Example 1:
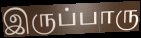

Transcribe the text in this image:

இருப்பாரு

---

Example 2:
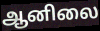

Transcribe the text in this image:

ஆனிலை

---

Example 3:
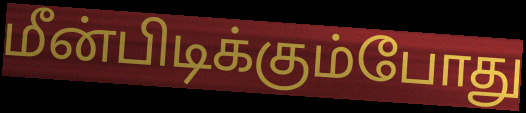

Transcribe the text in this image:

மீன்பிடிக்கும்போது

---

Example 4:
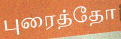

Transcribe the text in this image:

புரைத்தோ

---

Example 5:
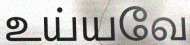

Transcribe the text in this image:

உய்யவே